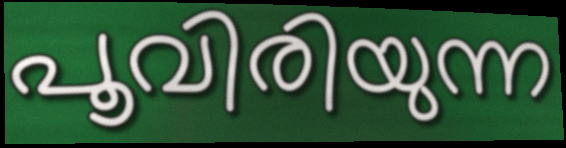
പൂവിരിയുന്ന